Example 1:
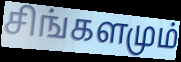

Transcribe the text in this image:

சிங்களமும்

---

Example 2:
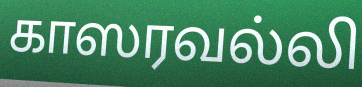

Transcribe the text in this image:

காஸரவல்லி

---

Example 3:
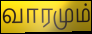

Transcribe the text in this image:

வாரமும்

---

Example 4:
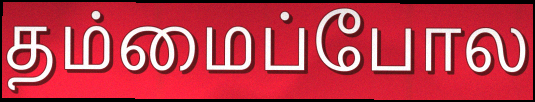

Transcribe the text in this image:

தம்மைப்போல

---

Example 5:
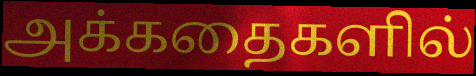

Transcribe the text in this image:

அக்கதைகளில்